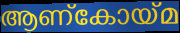
ആണ്കോയ്മ